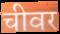
चीवर